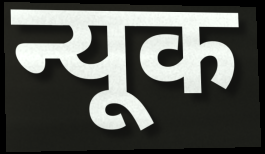
न्यूक